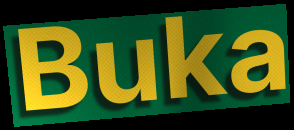
Buka